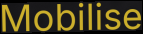
Mobilise